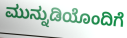
ಮುನ್ನುಡಿಯೊಂದಿಗೆ